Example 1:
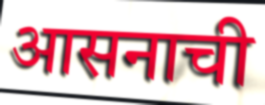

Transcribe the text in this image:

आसनाची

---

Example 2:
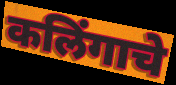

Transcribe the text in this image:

कलिंगाचे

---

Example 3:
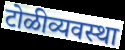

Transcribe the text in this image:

टोळीव्यवस्था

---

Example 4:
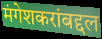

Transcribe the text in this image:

मंगेशकरांबद्दल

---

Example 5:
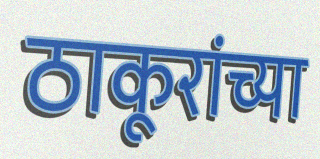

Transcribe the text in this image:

ठाकूरांच्या